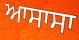
ਆਸਾਸਾ